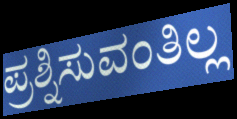
ಪ್ರಶ್ನಿಸುವಂತಿಲ್ಲ